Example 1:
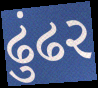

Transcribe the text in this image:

ઢુંઢર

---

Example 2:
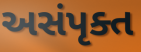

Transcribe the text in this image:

અસંપૃક્ત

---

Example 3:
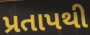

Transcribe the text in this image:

પ્રતાપથી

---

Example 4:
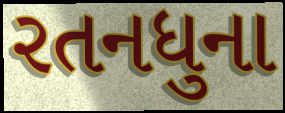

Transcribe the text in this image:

રતનધુના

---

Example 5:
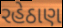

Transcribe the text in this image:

રહેઠાણ